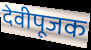
देवीपूजक